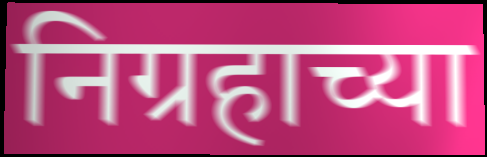
निग्रहाच्या